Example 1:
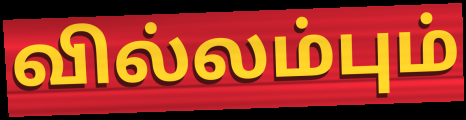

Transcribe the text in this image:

வில்லம்பும்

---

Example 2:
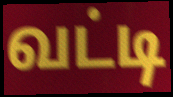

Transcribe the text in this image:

வட்டி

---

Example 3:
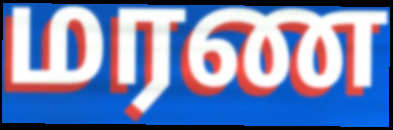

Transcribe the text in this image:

மரண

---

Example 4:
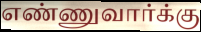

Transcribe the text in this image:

எண்ணுவார்க்கு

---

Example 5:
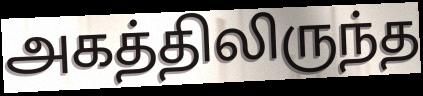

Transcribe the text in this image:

அகத்திலிருந்த